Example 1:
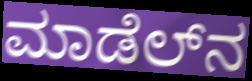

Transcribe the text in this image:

ಮಾಡೆಲ್‌ನ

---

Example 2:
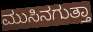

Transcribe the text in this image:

ಮುಸಿನಗುತ್ತಾ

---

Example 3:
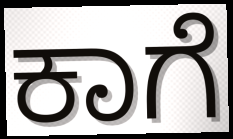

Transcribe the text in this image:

ಕಾಗೆ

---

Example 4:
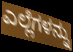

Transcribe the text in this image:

ಎಲ್ಲೆಗಳನ್ನು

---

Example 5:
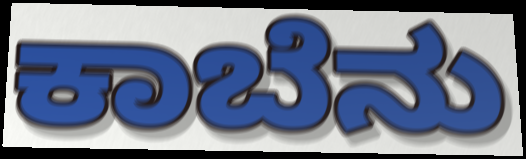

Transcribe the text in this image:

ಕಾಬೆನು